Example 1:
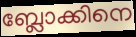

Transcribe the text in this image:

ബ്ലോക്കിനെ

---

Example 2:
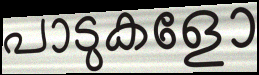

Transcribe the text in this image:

പാടുകളോ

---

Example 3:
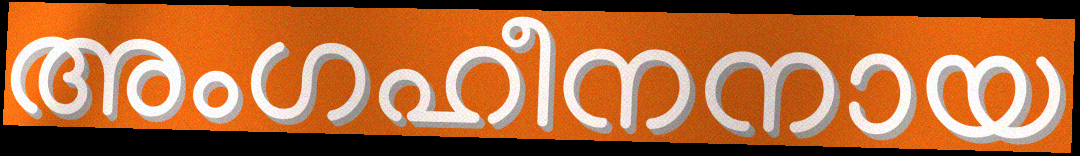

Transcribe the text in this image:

അംഗഹീനനായ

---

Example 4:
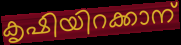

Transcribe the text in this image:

കൃഷിയിറക്കാന്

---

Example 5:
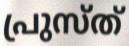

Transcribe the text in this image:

പ്രുസ്ത്